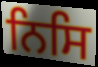
ਨਿਸਿ